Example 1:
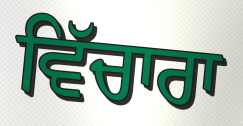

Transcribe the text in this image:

ਵਿੱਚਾਰਾ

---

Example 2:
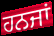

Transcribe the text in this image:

ਹਨਜਾਂ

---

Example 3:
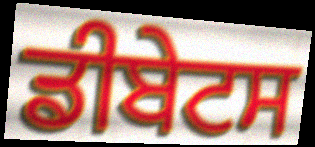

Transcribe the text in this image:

ਡੀਬੇਟਸ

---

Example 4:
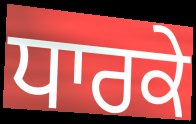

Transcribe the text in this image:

ਧਾਰਕੇ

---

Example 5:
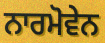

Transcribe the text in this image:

ਨਾਰਮੋਵੇਨ